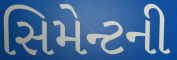
સિમેન્ટની